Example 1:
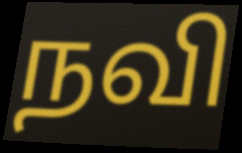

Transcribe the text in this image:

நவி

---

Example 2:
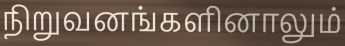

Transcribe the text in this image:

நிறுவனங்களினாலும்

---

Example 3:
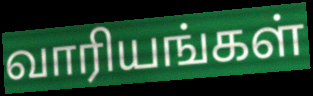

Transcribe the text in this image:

வாரியங்கள்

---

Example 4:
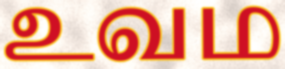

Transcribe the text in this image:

உவம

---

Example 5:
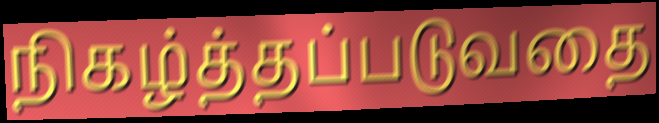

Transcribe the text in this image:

நிகழ்த்தப்படுவதை